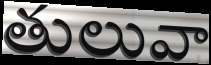
తులువా